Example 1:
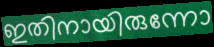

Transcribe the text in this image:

ഇതിനായിരുന്നോ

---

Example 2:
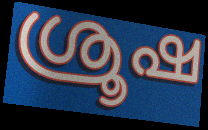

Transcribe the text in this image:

ശ്രൂഷ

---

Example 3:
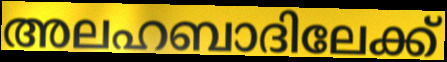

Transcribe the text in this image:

അലഹബാദിലേക്ക്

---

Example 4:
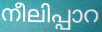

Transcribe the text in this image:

നീലിപ്പാറ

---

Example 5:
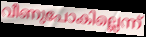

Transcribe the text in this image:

വീണുപോകില്ലെന്ന്